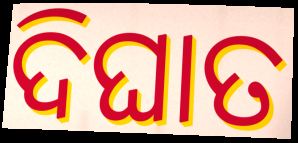
ଦିଘାତ